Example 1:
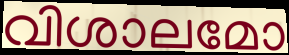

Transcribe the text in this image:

വിശാലമോ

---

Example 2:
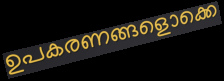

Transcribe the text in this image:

ഉപകരണങ്ങളൊക്കെ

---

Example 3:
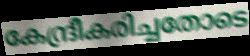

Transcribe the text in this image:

കേന്ദ്രീകരിച്ചതോടെ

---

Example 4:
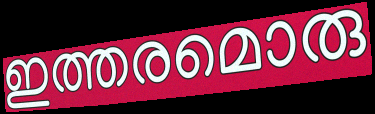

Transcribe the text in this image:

ഇത്തരമൊരു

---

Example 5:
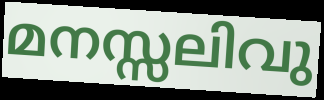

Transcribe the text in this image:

മനസ്സലിവു